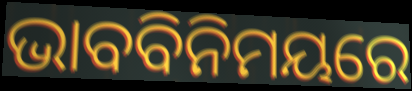
ଭାବବିନିମୟରେ